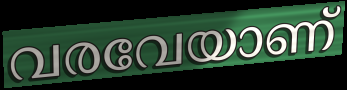
വരവേയാണ്